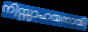
നിസ്സാഹയനായി